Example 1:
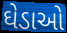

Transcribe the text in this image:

ઘેડાઓ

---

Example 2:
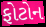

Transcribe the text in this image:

ફોટોન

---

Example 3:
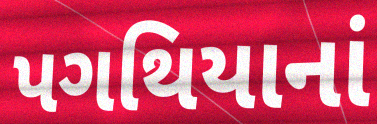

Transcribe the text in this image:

પગથિયાનાં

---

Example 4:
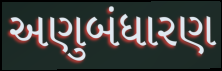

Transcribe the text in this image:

અણુબંધારણ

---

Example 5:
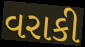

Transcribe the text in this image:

વરાકી